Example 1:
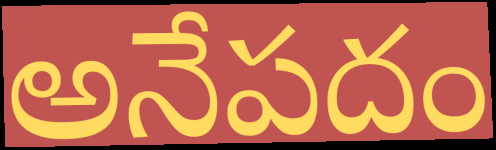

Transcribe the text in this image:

అనేపదం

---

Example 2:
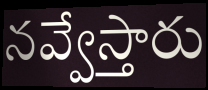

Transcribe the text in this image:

నవ్వేస్తారు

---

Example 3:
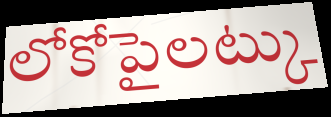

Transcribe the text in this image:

లోకోపైలట్కు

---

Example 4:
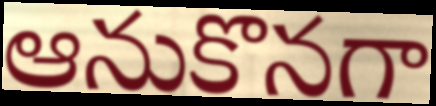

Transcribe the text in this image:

ఆనుకొనగా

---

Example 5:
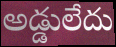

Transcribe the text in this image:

అడ్డులేదు